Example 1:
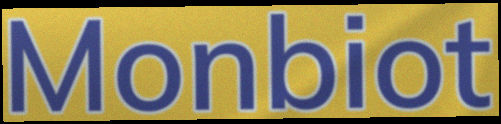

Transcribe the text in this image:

Monbiot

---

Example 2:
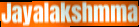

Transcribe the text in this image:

Jayalakshmma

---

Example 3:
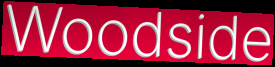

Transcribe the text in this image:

Woodside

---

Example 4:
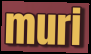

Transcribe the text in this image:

muri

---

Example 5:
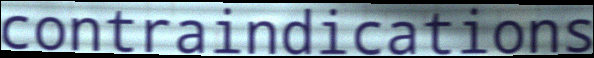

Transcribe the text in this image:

contraindications